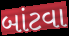
બાંટવા